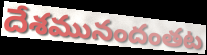
దేశమునందంతట